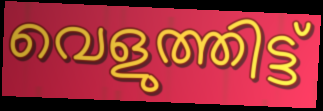
വെളുത്തിട്ട്